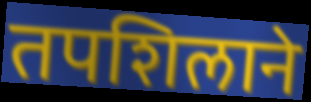
तपशिलाने